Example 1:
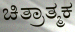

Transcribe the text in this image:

ಚಿತ್ರಾತ್ಮಕ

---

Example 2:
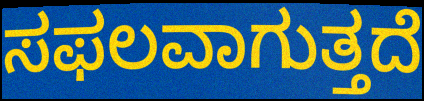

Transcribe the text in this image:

ಸಫಲವಾಗುತ್ತದೆ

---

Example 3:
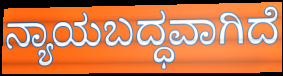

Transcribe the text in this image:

ನ್ಯಾಯಬದ್ಧವಾಗಿದೆ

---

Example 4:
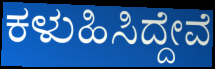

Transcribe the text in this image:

ಕಳುಹಿಸಿದ್ದೇವೆ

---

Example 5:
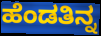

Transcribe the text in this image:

ಹೆಂಡತಿನ್ನ